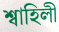
শ্বাহিলী